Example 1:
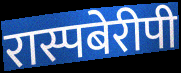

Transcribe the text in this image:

रास्पबेरीपी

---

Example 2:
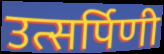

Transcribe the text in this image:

उत्सर्पिणी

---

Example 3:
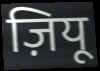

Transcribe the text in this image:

ज़ियू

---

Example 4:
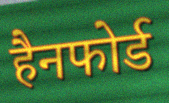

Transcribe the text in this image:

हैनफोर्ड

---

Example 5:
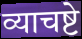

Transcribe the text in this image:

व्याचष्टे